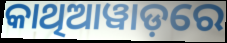
କାଥିଆୱାଡ଼ରେ